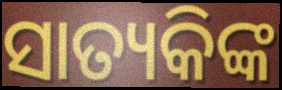
ସାତ୍ୟକିଙ୍କ